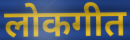
लोकगीत